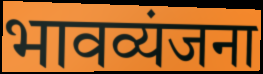
भावव्यंजना